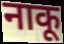
नाकू